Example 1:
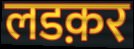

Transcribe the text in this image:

लडक़र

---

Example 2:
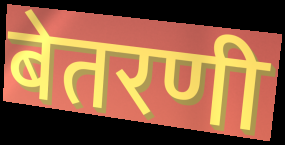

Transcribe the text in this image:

बेतरणी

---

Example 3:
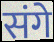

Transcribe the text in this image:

संगे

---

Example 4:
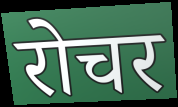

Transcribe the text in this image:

रोचर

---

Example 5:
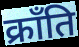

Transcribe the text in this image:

क्राँति